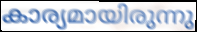
കാര്യമായിരുന്നു